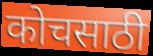
कोचसाठी